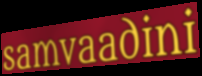
samvaadini